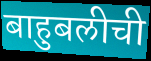
बाहुबलीची